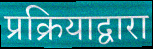
प्रक्रियाद्वारा